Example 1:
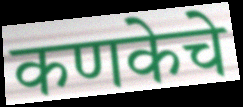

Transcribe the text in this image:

कणकेचे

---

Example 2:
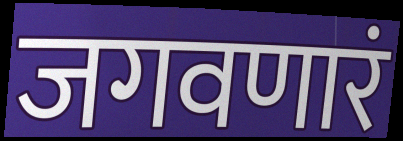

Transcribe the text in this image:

जगवणारं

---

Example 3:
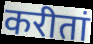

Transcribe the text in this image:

करीतां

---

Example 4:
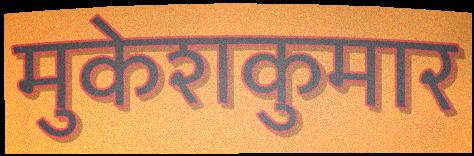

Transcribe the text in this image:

मुकेशकुमार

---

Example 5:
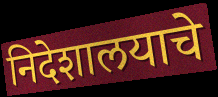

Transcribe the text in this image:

निदेशालयाचे